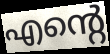
എന്റെ